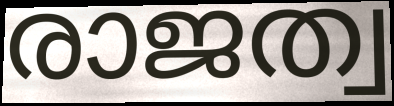
രാജത്വ